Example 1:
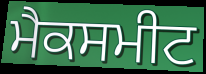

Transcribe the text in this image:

ਮੈਕਸਮੀਟ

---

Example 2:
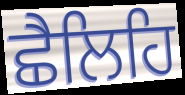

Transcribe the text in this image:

ਛੈਲਿਹਿ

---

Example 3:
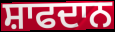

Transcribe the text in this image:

ਸ਼ਾਫਦਾਨ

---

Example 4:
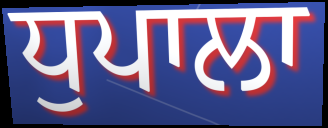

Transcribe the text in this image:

ਧੁਪਾਲਾ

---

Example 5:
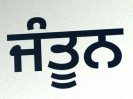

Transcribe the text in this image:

ਜੰਤੂਨ